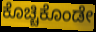
ಕೊಚ್ಚಿಕೊಂಡೇ